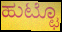
ಹುಟ್ಟೊ